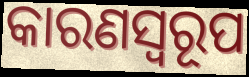
କାରଣସ୍ୱରୂପ